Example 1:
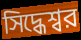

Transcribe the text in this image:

সিদ্ধেশ্বর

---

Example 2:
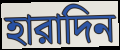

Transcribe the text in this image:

হারাদিন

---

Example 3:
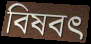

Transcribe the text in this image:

বিষবৎ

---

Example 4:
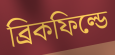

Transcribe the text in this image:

ব্রিকফিল্ডে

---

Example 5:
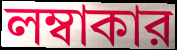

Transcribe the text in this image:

লম্বাকার